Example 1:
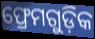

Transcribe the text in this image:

ଫ୍ରେମଗୁଡ଼ିକ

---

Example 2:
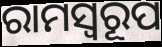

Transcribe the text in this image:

ରାମସ୍ୱରୂପ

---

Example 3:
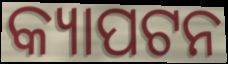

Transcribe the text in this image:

କ୍ୟାପଟନ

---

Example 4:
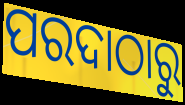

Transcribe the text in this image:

ପରଦାଠାରୁ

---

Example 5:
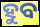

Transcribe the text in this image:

ହୁବ